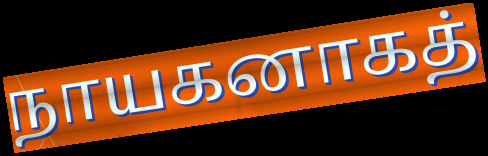
நாயகனாகத்